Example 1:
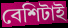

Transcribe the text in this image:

বেশিটাই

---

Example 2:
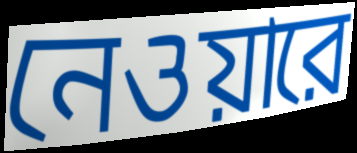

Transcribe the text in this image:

নেওয়ারে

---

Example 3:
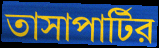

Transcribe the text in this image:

তাসাপার্টির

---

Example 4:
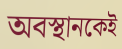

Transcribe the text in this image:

অবস্থানকেই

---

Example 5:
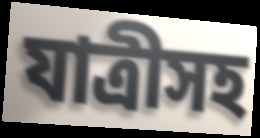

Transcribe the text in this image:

যাত্রীসহ